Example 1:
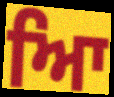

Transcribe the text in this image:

ਆਿ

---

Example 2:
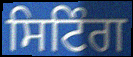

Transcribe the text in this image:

ਸਿਟਿੰਗ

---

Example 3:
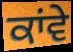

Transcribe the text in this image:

ਕਾਂਵੇ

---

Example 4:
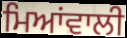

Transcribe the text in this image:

ਮਿਆਂਵਾਲੀ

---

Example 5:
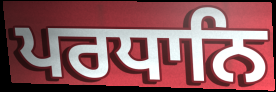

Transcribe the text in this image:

ਪਰਧਾਨਿ